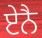
ਏਨੈ